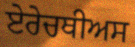
ਏਰੇਚਥੀਅਸ